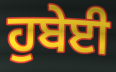
ਹੁਬੇਈ